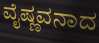
ವೈಷ್ಣವನಾದ